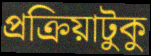
প্রক্রিয়াটুকু